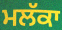
ਮਲੱਕਾ